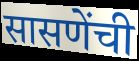
सासणेंची